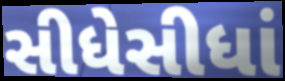
સીધેસીધાં